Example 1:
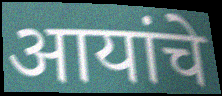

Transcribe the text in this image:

आयांचे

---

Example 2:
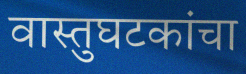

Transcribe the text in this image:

वास्तुघटकांचा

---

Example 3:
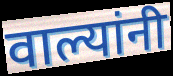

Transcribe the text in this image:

वाल्यांनी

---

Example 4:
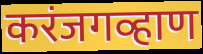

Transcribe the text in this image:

करंजगव्हाण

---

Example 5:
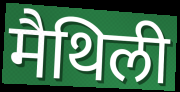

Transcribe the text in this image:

मैथिली